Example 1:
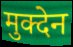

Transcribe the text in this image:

मुक्देन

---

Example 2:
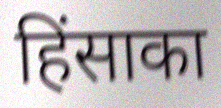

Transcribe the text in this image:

हिंसाका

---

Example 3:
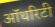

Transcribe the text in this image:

ऑथरिटी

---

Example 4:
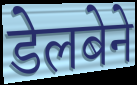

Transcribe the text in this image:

डेलबेने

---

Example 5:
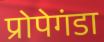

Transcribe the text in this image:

प्रोपेगंडा